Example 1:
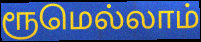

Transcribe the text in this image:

ரூமெல்லாம்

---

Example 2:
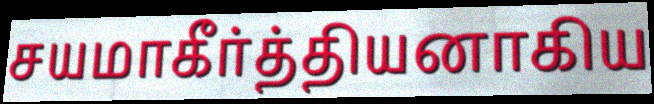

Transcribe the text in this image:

சயமாகீர்த்தியனாகிய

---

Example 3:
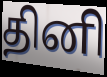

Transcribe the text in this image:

தினி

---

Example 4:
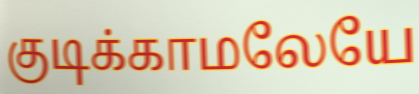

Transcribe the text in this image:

குடிக்காமலேயே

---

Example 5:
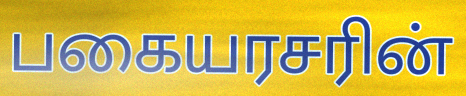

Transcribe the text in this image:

பகையரசரின்